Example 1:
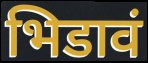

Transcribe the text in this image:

भिडावं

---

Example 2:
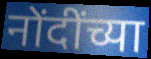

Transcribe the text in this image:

नोंदींच्या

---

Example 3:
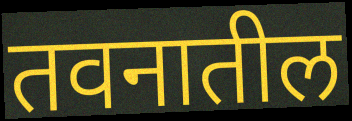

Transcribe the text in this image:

तवनातील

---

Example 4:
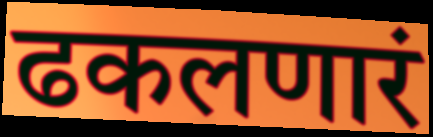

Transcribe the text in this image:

ढकलणारं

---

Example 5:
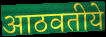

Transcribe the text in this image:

आठवतीये